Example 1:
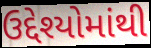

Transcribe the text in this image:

ઉદ્દેશ્યોમાંથી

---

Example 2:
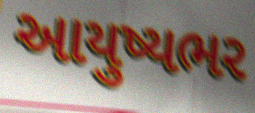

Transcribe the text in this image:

આયુષ્યભર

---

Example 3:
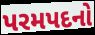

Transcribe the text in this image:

પરમપદનો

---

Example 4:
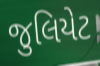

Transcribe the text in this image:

જુલિયેટ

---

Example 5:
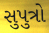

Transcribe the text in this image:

સુપુત્રો